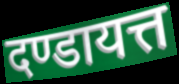
दण्डायत्त